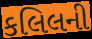
કલિલની